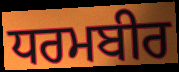
ਧਰਮਬੀਰ